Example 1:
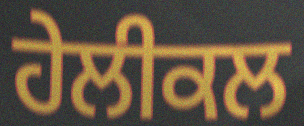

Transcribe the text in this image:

ਹੇਲੀਕਲ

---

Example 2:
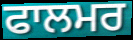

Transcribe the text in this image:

ਫਾਲਮਰ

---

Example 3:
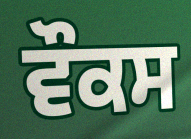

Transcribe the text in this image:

ਵੌਕਸ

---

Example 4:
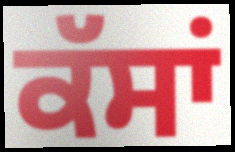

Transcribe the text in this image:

ਕੱਸਾਂ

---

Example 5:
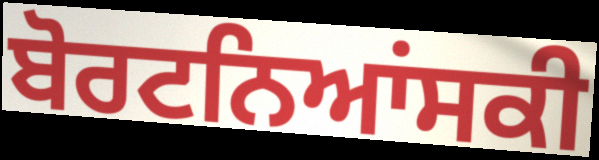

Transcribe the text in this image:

ਬੋਰਟਨਿਆਂਸਕੀ